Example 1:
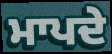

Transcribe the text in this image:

ਮਾਪਦੇ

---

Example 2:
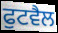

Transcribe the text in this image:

ਫੁਟਵੈਲ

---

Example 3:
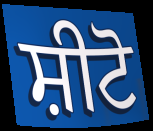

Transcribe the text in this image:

ਸ਼ੀਟੋ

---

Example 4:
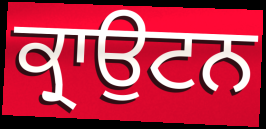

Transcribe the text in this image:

ਕ੍ਰਾਉਟਨ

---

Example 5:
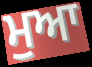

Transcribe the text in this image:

ਮੁਆ